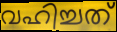
വഹിച്ചത്